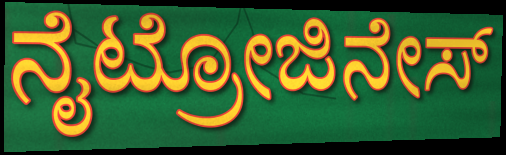
ನೈಟ್ರೋಜಿನೇಸ್